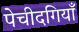
पेचीदगियाँ